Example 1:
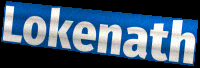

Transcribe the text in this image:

Lokenath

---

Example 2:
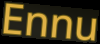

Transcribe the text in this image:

Ennu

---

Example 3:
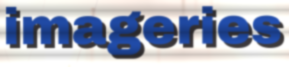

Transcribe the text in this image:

imageries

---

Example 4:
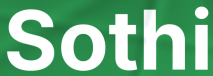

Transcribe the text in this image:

Sothi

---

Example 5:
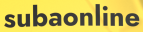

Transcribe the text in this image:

subaonline